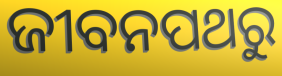
ଜୀବନପଥରୁ